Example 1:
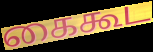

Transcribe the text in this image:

கைகூட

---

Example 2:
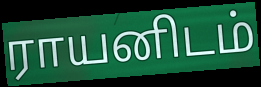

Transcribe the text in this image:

ராயனிடம்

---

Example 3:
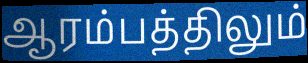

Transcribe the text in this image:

ஆரம்பத்திலும்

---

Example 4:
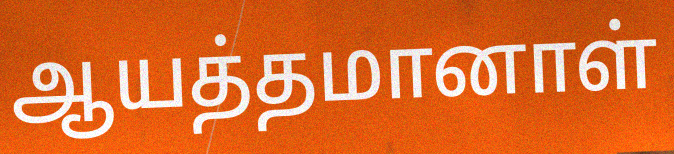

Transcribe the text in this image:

ஆயத்தமானாள்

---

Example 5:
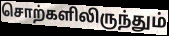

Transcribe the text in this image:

சொற்களிலிருந்தும்